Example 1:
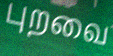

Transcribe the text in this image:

புறவை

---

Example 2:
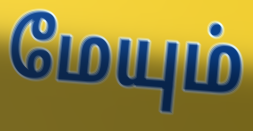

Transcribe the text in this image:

மேயும்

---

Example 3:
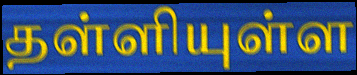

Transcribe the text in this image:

தள்ளியுள்ள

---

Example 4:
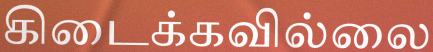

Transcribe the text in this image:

கிடைக்கவில்லை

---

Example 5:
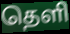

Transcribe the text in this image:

தெளி